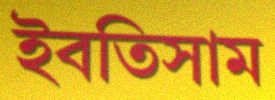
ইবতিসাম